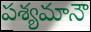
పశ్యమానౌ